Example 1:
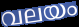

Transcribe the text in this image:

വലയം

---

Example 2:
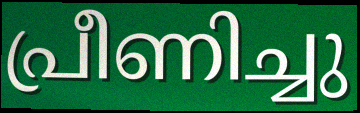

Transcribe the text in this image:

പ്രീണിച്ചു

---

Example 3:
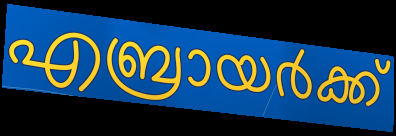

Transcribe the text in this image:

എബ്രായർക്ക്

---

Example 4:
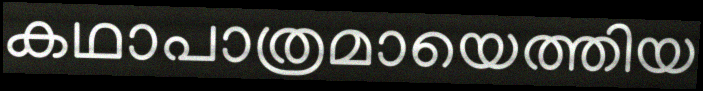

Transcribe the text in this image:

കഥാപാത്രമായെത്തിയ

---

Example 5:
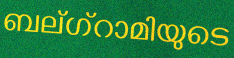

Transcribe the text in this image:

ബല്ഗ്റാമിയുടെ